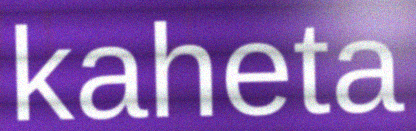
kaheta